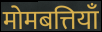
मोमबत्तियाँ